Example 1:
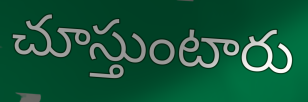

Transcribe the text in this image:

చూస్తుంటారు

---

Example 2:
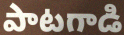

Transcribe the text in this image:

పాటగాడి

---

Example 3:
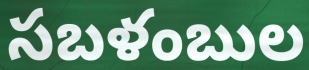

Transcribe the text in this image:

సబళంబుల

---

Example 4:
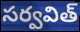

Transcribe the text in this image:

సర్వవిత్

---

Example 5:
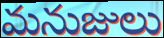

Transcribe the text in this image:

మనుజులు